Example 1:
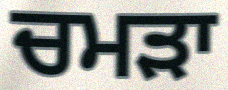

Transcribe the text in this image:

ਚਮੜਾ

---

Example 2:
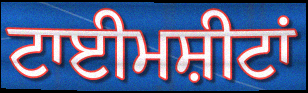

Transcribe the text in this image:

ਟਾਈਮਸ਼ੀਟਾਂ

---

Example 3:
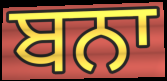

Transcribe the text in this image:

ਬਨਾ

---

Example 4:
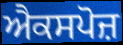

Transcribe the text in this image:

ਐਕਸਪੋਜ਼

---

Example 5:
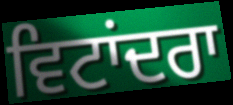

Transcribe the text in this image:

ਵਿਟਾਂਦਰਾ